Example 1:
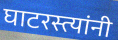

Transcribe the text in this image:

घाटरस्त्यांनी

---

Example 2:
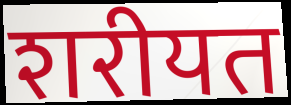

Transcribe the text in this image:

शरीयत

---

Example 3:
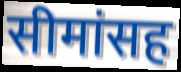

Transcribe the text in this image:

सीमांसह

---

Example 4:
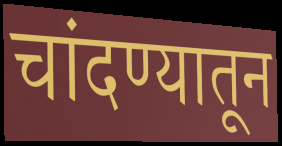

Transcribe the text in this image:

चांदण्यातून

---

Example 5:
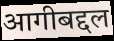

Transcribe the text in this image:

आगीबद्दल